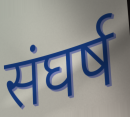
संघर्ष